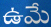
ఉమే